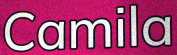
Camila